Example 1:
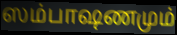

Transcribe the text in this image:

ஸம்பாஷணமும்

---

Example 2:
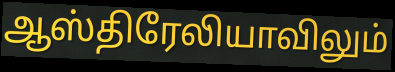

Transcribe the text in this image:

ஆஸ்திரேலியாவிலும்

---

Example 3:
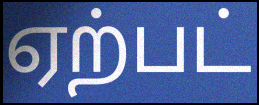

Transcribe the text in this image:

ஏற்பட்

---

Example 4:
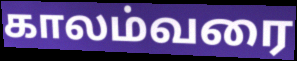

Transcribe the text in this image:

காலம்வரை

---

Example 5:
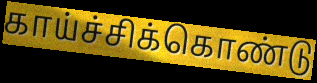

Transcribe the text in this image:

காய்ச்சிக்கொண்டு